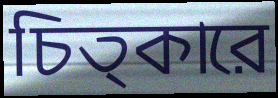
চিত্কারে